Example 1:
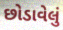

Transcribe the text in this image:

છોડાવેલું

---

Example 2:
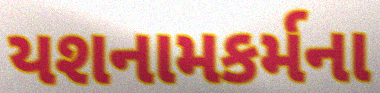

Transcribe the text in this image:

યશનામકર્મના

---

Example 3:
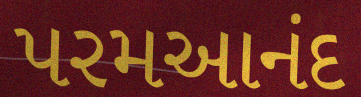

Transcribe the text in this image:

પરમઆનંદ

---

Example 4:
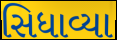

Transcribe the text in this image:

સિધાવ્યા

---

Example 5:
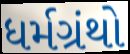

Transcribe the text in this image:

ધર્મગ્રંથો